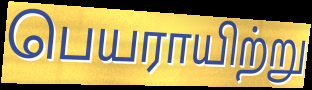
பெயராயிற்று